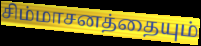
சிம்மாசனத்தையும்